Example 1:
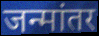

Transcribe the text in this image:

जन्मांतर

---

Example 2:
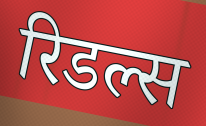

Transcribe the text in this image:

रिडल्स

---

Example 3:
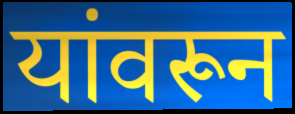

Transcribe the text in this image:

यांवरून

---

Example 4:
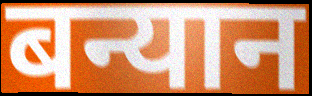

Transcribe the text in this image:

बन्यान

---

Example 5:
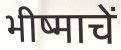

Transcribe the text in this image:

भीष्माचें